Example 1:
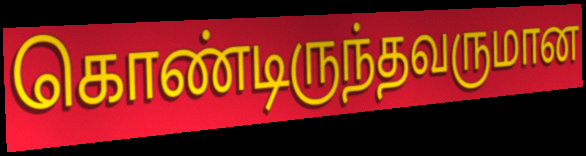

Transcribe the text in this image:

கொண்டிருந்தவருமான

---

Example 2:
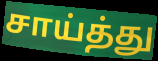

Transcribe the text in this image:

சாய்த்து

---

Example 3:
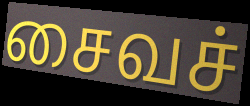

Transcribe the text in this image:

சைவச்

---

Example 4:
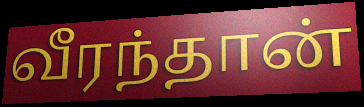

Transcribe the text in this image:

வீரந்தான்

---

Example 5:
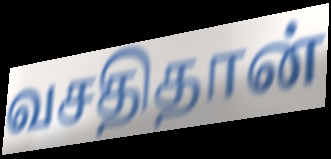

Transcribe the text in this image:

வசதிதான்